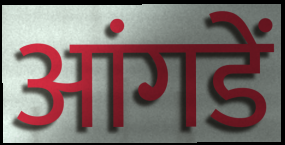
आंगडें